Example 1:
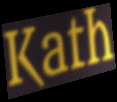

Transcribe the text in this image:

Kath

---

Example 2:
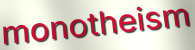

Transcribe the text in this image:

monotheism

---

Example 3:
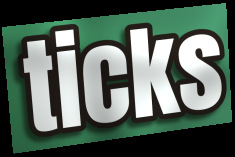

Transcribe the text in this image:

ticks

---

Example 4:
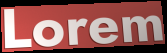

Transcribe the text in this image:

Lorem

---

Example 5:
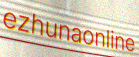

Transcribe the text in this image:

ezhunaonline